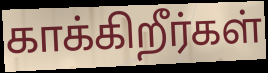
காக்கிறீர்கள்